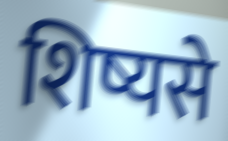
शिष्यसे